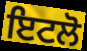
ਇਟਲੋ